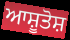
ਆਸ਼ੂਤੋਸ਼